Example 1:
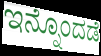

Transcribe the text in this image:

ಇನ್ನೊಂದಡೆ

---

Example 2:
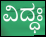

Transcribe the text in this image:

ವಿದ್ಧಃ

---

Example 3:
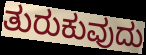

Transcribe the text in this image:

ತುರುಕುವುದು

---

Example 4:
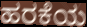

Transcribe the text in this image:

ಹರಕೆಯ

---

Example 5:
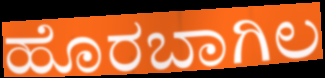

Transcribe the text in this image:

ಹೊರಬಾಗಿಲ